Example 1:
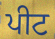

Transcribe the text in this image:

ਪੀਟ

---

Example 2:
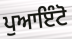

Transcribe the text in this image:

ਪੁਆਇੰਟੋ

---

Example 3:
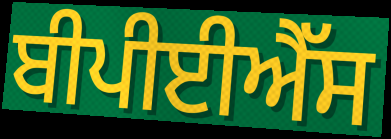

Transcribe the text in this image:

ਬੀਪੀਈਐੱਸ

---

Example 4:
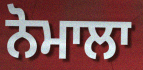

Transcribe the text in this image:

ਨੋਮਾਲਾ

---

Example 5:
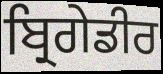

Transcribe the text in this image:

ਬ੍ਰਿਗੇਡੀਰ